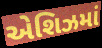
એશિઝમાં